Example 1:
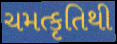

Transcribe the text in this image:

ચમત્કૃતિથી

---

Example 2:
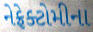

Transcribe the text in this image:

નેફ્રેક્ટોમીના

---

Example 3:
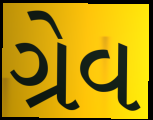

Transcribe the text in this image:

ગ્રેવ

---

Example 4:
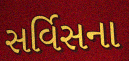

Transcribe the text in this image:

સર્વિસના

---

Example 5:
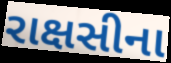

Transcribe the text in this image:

રાક્ષસીના